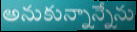
అనుకున్నాన్నేను